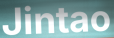
Jintao